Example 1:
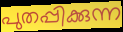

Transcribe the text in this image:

പുതപ്പിക്കുന്ന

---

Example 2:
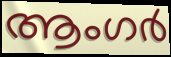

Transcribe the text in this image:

ആംഗർ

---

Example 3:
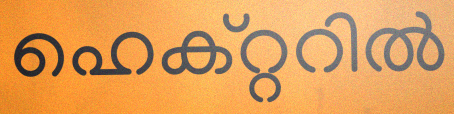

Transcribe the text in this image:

ഹെക്റ്ററിൽ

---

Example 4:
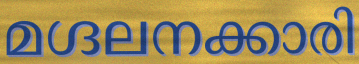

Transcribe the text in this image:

മഗ്ദലനക്കാരി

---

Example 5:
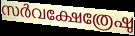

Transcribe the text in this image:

സർവക്ഷേത്രേഷു